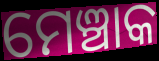
ମେଞ୍ଚାକ